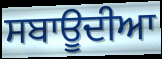
ਸਬਾਊਦੀਆ